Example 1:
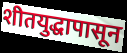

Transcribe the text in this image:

शीतयुद्धापासून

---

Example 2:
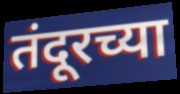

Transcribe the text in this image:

तंदूरच्या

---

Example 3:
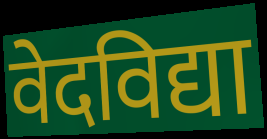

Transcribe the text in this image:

वेदविद्या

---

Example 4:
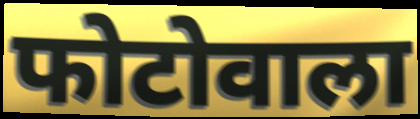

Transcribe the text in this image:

फोटोवाला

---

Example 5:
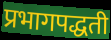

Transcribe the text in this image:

प्रभागपद्धती